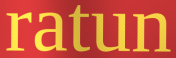
ratun